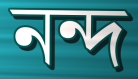
নন্দ